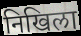
निखिला